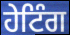
ਹੇਟਿੰਗ